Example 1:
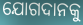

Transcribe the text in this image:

ଯୋଗଦାନକୁ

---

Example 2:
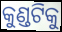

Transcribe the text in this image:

କୁଣ୍ଡଟିକୁ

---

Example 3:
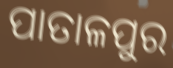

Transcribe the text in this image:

ପାତାଳପୁର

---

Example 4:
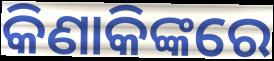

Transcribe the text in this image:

କିଣାକିଙ୍କରେ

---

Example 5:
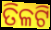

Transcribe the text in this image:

ତିଳଟି